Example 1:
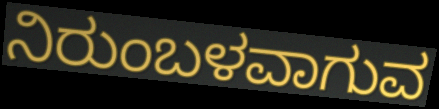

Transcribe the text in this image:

ನಿರುಂಬಳವಾಗುವ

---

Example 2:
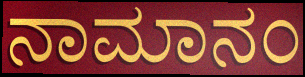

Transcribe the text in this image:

ನಾಮಾನಂ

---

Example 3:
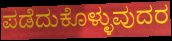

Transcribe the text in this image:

ಪಡೆದುಕೊಳ್ಳುವುದರ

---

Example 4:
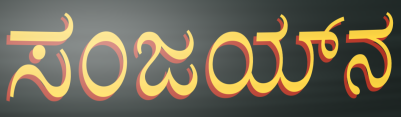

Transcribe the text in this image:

ಸಂಜಯ್‌ನ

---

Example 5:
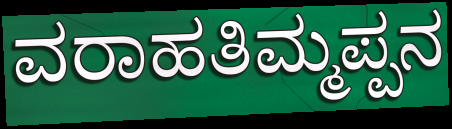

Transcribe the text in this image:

ವರಾಹತಿಮ್ಮಪ್ಪನ